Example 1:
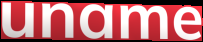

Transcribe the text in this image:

uname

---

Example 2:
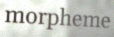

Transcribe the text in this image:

morpheme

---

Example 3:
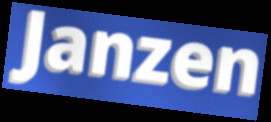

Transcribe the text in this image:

Janzen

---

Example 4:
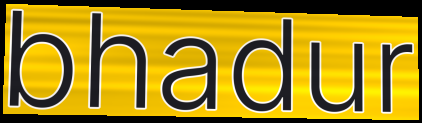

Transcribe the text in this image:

bhadur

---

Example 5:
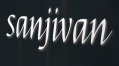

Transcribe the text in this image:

sanjivan